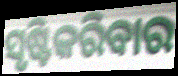
ସୃଷ୍ଟିକରିବାର